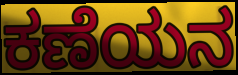
ಕಣೆಯನ